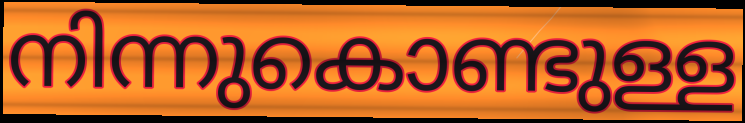
നിന്നുകൊണ്ടുള്ള